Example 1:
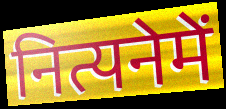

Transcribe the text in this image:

नित्यनेमें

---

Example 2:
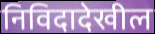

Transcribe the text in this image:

निविदादेखील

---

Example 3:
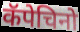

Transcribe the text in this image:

कॅपेचिनो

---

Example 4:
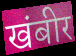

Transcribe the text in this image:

खंबीर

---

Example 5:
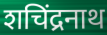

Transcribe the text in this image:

शचिंद्रनाथ